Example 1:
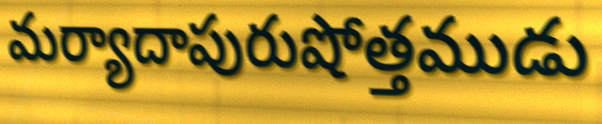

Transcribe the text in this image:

మర్యాదాపురుషోత్తముడు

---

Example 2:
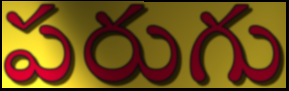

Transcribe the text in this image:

పరుగు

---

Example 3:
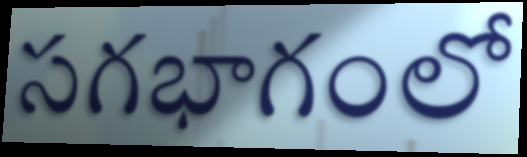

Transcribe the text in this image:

సగభాగంలో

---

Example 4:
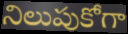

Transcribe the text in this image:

నిలుపుకోగా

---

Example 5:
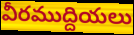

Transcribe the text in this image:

వీరముద్దియలు